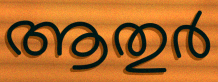
ആതുർ